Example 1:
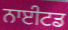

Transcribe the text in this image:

ਨਾਈਟਡ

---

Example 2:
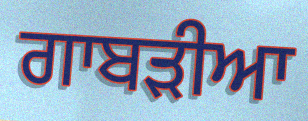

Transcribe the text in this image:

ਗਾਬੜੀਆ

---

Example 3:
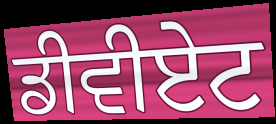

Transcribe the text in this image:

ਡੀਵੀਏਟ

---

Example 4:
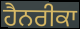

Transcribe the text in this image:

ਹੈਨਰੀਕਾ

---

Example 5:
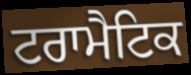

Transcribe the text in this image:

ਟਰਾਮੈਟਿਕ